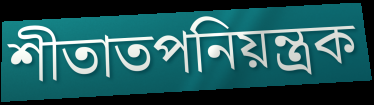
শীতাতপনিয়ন্ত্রক